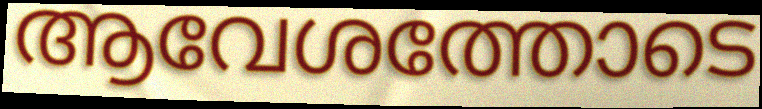
ആവേശത്തോടെ